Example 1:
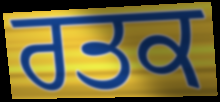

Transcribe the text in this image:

ਰਤਕ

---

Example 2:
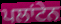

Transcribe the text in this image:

ਪਲਾਂਟੇਨ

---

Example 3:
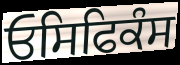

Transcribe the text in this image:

ਓਸਿਫਿਕੰਸ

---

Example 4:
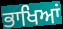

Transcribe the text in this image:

ਭਾਖਿਆਂ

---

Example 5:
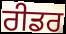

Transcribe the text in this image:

ਰੀਡਰ